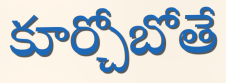
కూర్చోబోతే